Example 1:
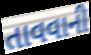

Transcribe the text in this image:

તાવવાની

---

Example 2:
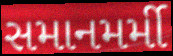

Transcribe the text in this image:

સમાનમર્મી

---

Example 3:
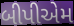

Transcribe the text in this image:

બીપીએમ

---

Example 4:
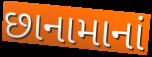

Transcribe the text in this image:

છાનામાનાં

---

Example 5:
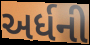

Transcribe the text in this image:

અર્ધની